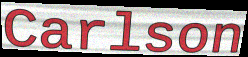
Carlson